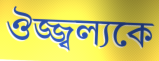
ঔজ্জ্বল্যকে